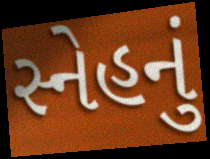
સ્નેહનું